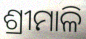
ଶ୍ରୀମାଳି